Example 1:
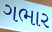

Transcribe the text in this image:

ગભાર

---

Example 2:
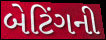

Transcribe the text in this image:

બેટિંગની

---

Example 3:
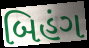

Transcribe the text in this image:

બિહંગ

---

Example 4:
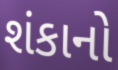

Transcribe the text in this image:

શંકાનો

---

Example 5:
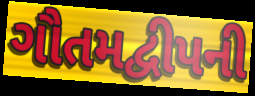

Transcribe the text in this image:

ગૌતમદ્વીપની